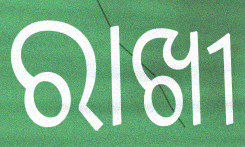
ରାଖୀ